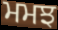
ਮਮਝ